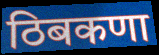
ठिबकणा